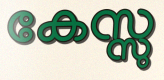
കേസ്സു